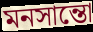
মনসান্তো